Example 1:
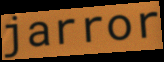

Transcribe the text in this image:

jarror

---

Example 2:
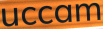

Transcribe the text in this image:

uccam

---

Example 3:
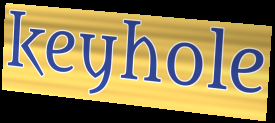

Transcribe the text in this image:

keyhole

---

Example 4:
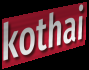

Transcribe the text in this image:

kothai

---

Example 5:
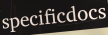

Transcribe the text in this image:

specificdocs